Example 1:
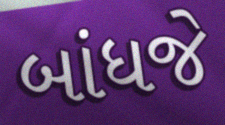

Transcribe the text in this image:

બાંધજે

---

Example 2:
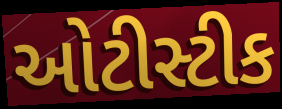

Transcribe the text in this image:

ઓટીસ્ટીક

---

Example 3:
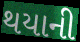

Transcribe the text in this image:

થયાની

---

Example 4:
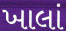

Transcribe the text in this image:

ખાલાં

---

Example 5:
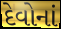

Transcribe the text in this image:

દેવોનાં